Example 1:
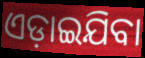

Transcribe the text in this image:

ଏଡ଼ାଇଯିବା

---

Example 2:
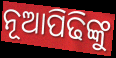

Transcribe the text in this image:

ନୂଆପିଢିଙ୍କୁ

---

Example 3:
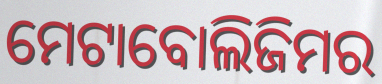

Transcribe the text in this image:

ମେଟାବୋଲିଜିମର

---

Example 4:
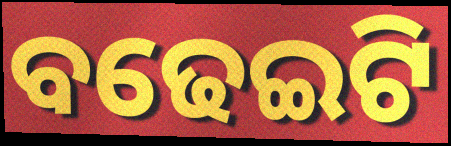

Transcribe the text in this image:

ବଢେଇଟି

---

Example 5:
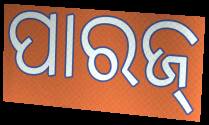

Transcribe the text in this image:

ପାରଜ୍